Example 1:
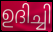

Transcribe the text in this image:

ഉദിച്ചി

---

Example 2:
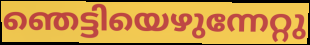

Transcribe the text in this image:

ഞെട്ടിയെഴുന്നേറ്റു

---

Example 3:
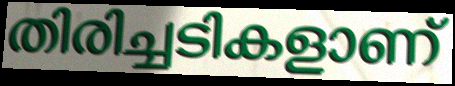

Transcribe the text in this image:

തിരിച്ചടികളാണ്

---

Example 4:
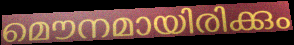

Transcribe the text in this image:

മൌനമായിരിക്കും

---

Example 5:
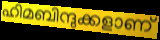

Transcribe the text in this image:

ഹിമബിന്ദുക്കളാണ്